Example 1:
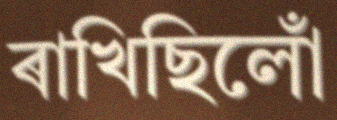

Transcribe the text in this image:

ৰাখিছিলোঁ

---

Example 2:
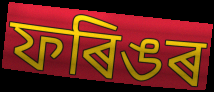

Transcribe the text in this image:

ফৰিঙৰ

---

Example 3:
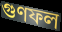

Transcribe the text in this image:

গুণফল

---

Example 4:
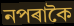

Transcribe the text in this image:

নপৰাকৈ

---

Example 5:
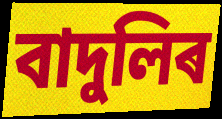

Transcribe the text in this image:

বাদুলিৰ